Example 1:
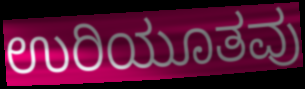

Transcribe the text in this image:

ಉರಿಯೂತವು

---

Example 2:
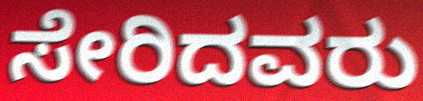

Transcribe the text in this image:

ಸೇರಿದವರು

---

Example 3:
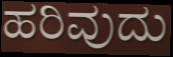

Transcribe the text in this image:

ಹರಿವುದು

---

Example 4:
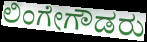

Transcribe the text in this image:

ಲಿಂಗೇಗೌಡರು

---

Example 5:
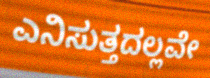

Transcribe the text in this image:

ಎನಿಸುತ್ತದಲ್ಲವೇ